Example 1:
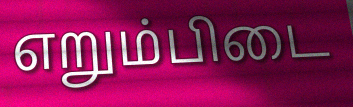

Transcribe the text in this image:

எறும்பிடை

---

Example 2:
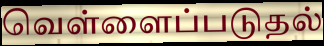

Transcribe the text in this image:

வெள்ளைப்படுதல்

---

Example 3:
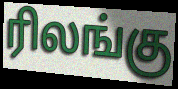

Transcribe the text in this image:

ரிலங்கு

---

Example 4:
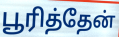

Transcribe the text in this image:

பூரித்தேன்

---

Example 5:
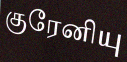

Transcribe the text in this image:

குரேனியு